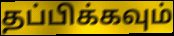
தப்பிக்கவும்